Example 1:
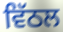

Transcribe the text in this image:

ਵਿੱਠਲ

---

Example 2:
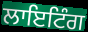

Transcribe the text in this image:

ਲਾਇਟਿੰਗ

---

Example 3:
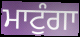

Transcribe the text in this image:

ਮਾਟੁੰਗਾ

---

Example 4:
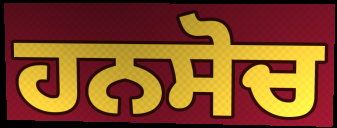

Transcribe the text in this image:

ਹਨਸੋਚ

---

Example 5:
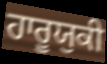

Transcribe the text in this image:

ਹਾਰੂਯੁਕੀ